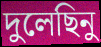
দুলেছিনু